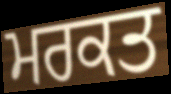
ਮਰਕਤ